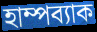
হাম্পব্যাক